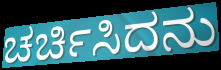
ಚರ್ಚಿಸಿದನು